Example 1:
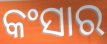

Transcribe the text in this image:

କଂସାର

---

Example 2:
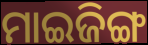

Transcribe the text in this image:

ମାଇଜିଙ୍ଗ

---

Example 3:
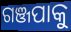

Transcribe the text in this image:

ଗଞ୍ଜପାକୁ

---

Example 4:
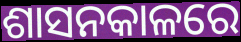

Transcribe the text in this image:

ଶାସନକାଳରେ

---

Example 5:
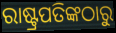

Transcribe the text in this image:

ରାଷ୍ଟ୍ରପତିଙ୍କଠାରୁ